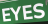
EYES